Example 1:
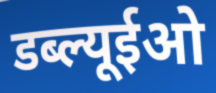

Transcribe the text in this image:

डब्ल्यूईओ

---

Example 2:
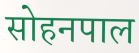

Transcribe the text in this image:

सोहनपाल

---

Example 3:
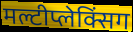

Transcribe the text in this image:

मल्टीप्लेक्सिंग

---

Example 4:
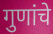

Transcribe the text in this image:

गुणांचे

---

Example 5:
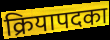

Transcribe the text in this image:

क्रियापदका